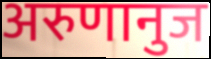
अरुणानुज